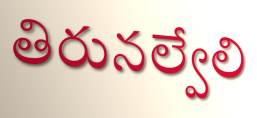
తిరునల్వేలి